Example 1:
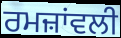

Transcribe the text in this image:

ਰਮਜ਼ਾਂਵਲੀ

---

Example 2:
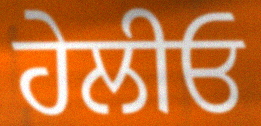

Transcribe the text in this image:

ਹੇਲੀਓ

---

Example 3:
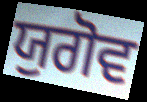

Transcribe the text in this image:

ਯੁਗੋਵ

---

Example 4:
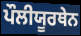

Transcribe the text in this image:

ਪੌਲੀਯੂਰਥੇਨ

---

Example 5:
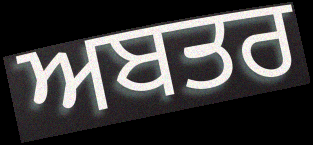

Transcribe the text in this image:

ਅਬਤਰ